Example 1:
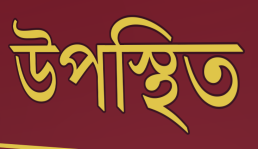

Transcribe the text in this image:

উপস্থিত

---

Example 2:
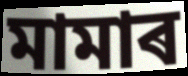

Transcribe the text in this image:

মামাৰ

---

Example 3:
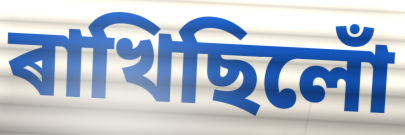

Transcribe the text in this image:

ৰাখিছিলোঁ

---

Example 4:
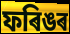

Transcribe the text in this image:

ফৰিঙৰ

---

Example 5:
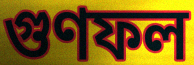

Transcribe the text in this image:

গুণফল